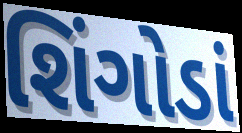
શિંગોડાં